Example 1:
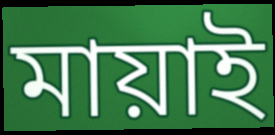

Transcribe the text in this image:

মায়াই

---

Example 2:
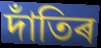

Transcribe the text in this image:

দাঁতিৰ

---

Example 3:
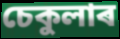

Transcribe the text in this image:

চেকুলাৰ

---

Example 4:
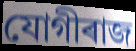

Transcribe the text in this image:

যোগীৰাজ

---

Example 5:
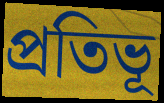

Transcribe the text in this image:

প্ৰতিভূ